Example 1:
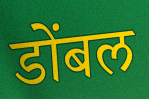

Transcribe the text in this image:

डोंबल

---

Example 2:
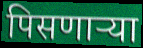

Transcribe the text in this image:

पिसणाऱ्या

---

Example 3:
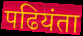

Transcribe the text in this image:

पढियंता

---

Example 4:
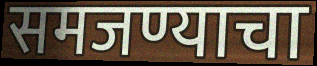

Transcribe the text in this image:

समजण्याचा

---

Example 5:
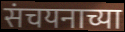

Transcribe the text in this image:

संचयनाच्या